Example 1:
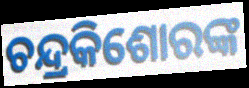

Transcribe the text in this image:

ଚନ୍ଦ୍ରକିଶୋରଙ୍କ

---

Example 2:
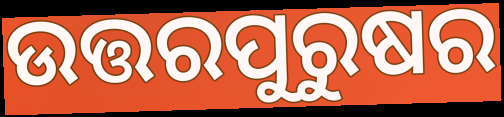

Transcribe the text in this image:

ଉତ୍ତରପୁରୁଷର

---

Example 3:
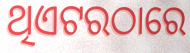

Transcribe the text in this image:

ଥିଏଟରଠାରେ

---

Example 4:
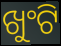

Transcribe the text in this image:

ଖୁଂଟି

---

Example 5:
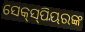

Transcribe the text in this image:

ସେକ୍‌ସ୍‌ପିୟରଙ୍କ